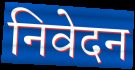
निवेदन